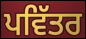
ਪਵਿੱਤਰ